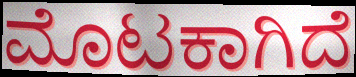
ಮೊಟಕಾಗಿದೆ